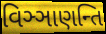
વિઞ્ઞાણન્તિ